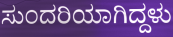
ಸುಂದರಿಯಾಗಿದ್ದಳು